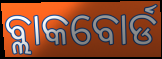
ବ୍ଲାକବୋର୍ଡ